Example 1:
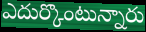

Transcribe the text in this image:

ఎదుర్కొంటున్నారు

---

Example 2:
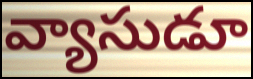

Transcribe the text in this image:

వ్యాసుడూ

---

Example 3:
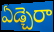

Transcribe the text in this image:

ఏడ్చెరా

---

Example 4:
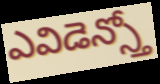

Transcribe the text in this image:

ఎవిడెన్స్తో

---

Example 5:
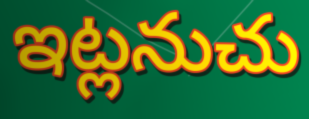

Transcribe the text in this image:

ఇట్లనుచు